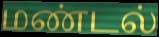
மண்டல்